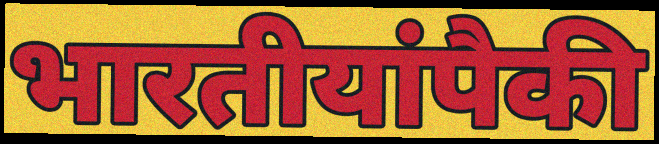
भारतीयांपैकी